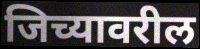
जिच्यावरील